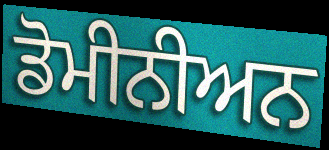
ਡੋਮੀਨੀਅਨ